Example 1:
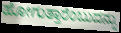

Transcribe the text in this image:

ಹೋಗುತ್ತಾರೆಂಬುದನ್ನು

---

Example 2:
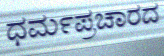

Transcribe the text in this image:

ಧರ್ಮಪ್ರಚಾರದ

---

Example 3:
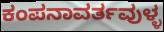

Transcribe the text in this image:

ಕಂಪನಾವರ್ತವುಳ್ಳ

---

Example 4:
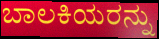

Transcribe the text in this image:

ಬಾಲಕಿಯರನ್ನು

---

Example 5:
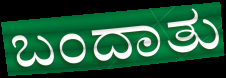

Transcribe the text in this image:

ಬಂದಾತು